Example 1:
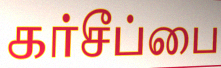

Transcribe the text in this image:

கர்சீப்பை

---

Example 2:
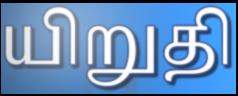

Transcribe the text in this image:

யிறுதி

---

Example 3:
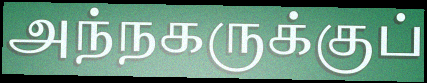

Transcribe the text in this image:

அந்நகருக்குப்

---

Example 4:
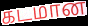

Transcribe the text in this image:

கடமான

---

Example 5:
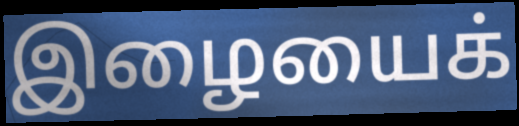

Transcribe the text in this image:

இழையைக்